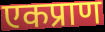
एकप्राण